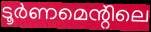
ടൂർണമെന്റിലെ